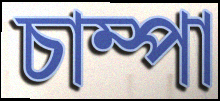
চাম্পা